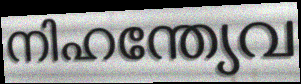
നിഹന്ത്യേവ